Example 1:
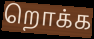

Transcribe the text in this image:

றொக்க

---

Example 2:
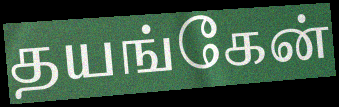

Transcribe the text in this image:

தயங்கேன்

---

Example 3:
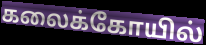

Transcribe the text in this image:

கலைக்கோயில்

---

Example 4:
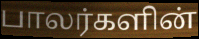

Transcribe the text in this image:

பாலர்களின்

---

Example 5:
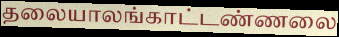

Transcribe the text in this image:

தலையாலங்காட்டண்ணலை